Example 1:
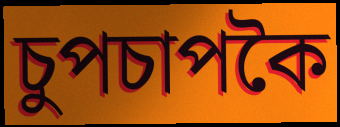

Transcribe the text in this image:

চুপচাপকৈ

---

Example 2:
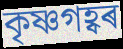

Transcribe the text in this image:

কৃষ্ণগহ্বৰ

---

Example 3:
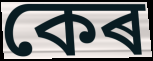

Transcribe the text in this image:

কেৰ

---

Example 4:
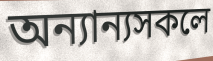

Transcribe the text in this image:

অন্যান্যসকলে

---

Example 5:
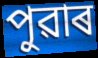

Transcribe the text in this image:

পুৱাৰ